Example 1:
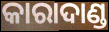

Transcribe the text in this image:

କାରାଦାଣ୍ଡ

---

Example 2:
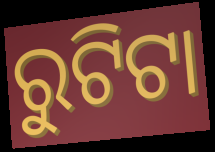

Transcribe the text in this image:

ରୁଟିଟା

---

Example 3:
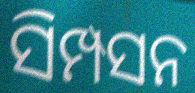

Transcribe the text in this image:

ସିମ୍ପସନ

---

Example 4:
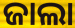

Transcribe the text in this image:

ଜାଲା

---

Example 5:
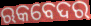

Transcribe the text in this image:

ଋକବେଦର